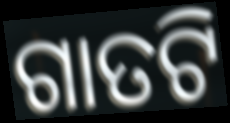
ଗାତଟି